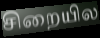
சிறையில